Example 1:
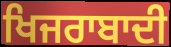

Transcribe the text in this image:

ਖਿਜਰਾਬਾਦੀ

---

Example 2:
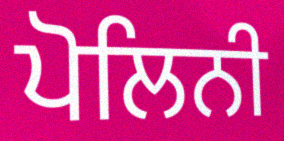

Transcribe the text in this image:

ਪੋਲਿਨੀ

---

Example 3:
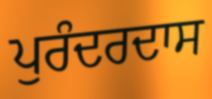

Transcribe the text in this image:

ਪੁਰੰਦਰਦਾਸ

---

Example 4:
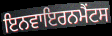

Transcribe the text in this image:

ਇਨਵਾਇਰਨਮੈਂਟਸ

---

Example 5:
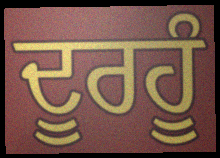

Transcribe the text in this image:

ਦੂਰਹੂੰ